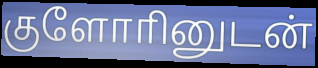
குளோரினுடன்